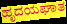
ಹೃದಯಘಾತ